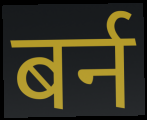
बर्न